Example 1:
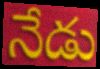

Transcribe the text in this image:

నేడు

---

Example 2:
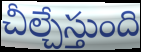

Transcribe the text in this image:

చీల్చేస్తుంది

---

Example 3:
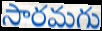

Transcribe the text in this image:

సారమగు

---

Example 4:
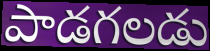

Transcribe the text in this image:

పాడగలడు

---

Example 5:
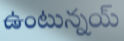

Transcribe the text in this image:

ఉంటున్నయ్